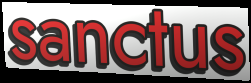
sanctus